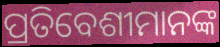
ପ୍ରତିବେଶୀମାନଙ୍କ